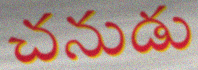
చనుడు